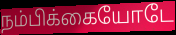
நம்பிக்கையோடே